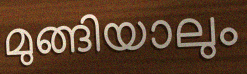
മുങ്ങിയാലും